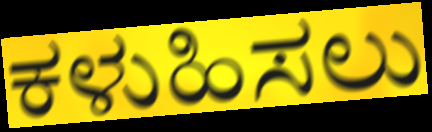
ಕಳುಹಿಸಲು